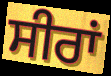
ਸੀਰਾਂ